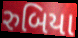
રુબિયા